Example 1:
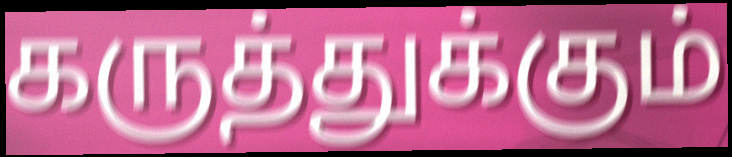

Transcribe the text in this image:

கருத்துக்கும்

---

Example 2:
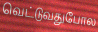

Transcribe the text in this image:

வெட்டுவதுபோல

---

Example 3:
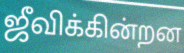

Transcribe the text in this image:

ஜீவிக்கின்றன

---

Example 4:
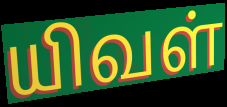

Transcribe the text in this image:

யிவள்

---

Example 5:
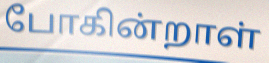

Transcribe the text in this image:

போகின்றாள்